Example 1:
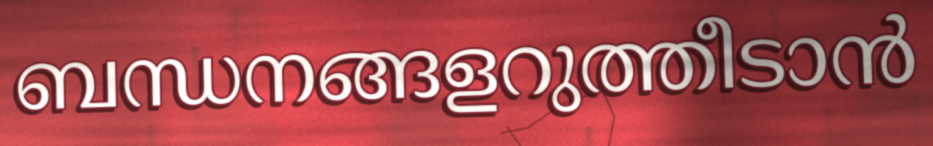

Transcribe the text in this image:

ബന്ധനങ്ങളറുത്തീടാൻ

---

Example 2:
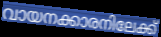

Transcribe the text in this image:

വായനക്കാരനിലേക്ക്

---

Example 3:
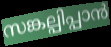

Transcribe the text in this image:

സങ്കല്പിപ്പാൻ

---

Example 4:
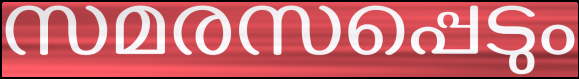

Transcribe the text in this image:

സമരസപ്പെടും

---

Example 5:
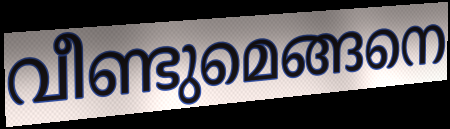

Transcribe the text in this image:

വീണ്ടുമെങ്ങനെ